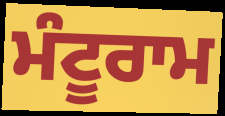
ਮੰਟੂਰਾਮ